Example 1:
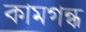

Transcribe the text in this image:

কামগন্ধ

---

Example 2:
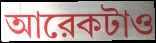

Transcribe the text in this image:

আরেকটাও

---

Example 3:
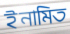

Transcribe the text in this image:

ইনামিত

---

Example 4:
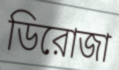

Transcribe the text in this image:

ডিরোজা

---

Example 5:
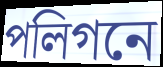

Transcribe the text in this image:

পলিগনে